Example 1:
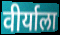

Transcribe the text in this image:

वीर्याला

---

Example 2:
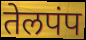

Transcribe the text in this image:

तेलपंप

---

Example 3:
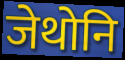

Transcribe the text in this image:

जेथोनि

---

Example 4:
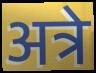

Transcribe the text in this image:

अत्रे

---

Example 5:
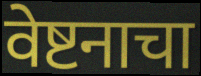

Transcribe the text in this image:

वेष्टनाचा